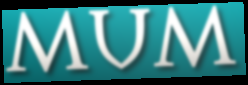
MUM